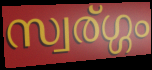
സ്വര്ഗ്ഗം